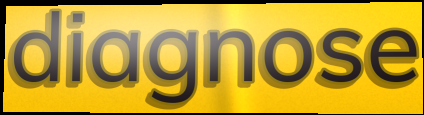
diagnose